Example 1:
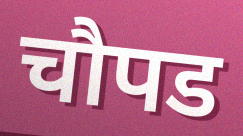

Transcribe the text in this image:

चौपड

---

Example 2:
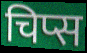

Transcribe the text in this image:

चिप्‍स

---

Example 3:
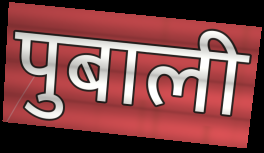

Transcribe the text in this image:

पुबाली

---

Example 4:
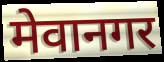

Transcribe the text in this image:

मेवानगर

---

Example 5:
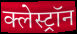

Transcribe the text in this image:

क्लेस्ट्रॉन